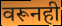
वरूनही